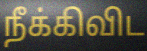
நீக்கிவிட